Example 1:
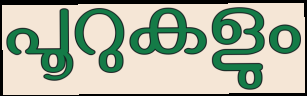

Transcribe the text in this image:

പൂറുകളും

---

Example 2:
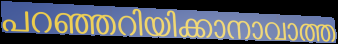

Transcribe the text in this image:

പറഞ്ഞറിയിക്കാനാവാത്ത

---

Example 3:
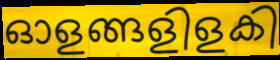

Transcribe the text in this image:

ഓളങ്ങളിളകി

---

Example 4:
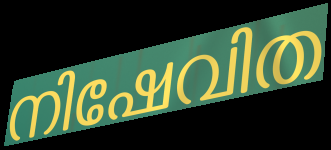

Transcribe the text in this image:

നിഷേവിത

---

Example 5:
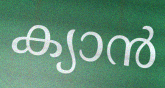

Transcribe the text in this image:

ക്യാൻ